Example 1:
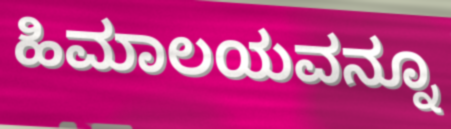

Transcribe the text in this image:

ಹಿಮಾಲಯವನ್ನೂ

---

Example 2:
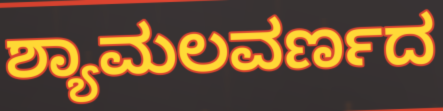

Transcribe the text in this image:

ಶ್ಯಾಮಲವರ್ಣದ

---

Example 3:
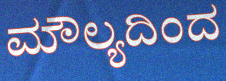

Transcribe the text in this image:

ಮೌಲ್ಯದಿಂದ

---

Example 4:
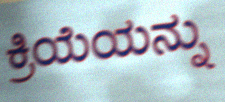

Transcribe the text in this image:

ಕ್ರಿಯೆಯನ್ನು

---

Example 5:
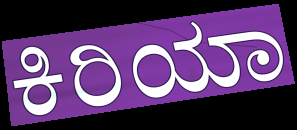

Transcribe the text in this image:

ಕಿರಿಯಾ